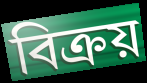
বিক্রয়